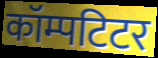
कॉम्पटिटर